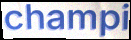
champi